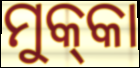
ମୁକ୍‌କା